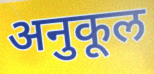
अनुकूल